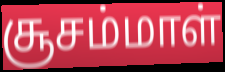
சூசம்மாள்